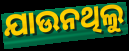
ଯାଉନଥିଲୁ